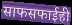
साफसफाईही